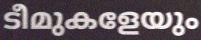
ടീമുകളേയും